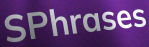
SPhrases